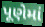
પૂણેમાં